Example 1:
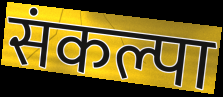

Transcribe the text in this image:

संकल्पा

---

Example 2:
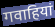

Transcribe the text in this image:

गवाहियां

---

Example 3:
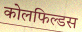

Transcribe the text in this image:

कोलफिल्डस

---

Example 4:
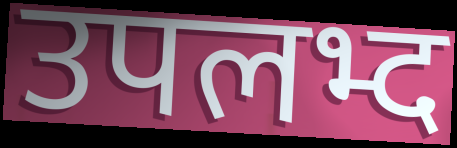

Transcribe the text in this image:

उपलभ्द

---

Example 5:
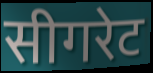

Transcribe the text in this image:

सीगरेट